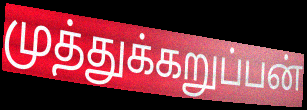
முத்துக்கறுப்பன்